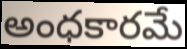
అంధకారమే